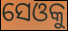
ସେଓକୁ